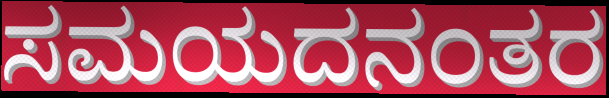
ಸಮಯದನಂತರ